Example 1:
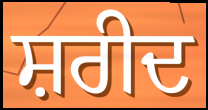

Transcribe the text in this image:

ਸ਼ਰੀਦ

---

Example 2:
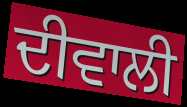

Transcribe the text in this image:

ਦੀਵਾਲੀ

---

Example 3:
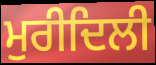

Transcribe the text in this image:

ਮੁਰੀਦਿਲੀ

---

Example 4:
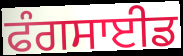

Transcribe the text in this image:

ਫੰਗਸਾਈਡ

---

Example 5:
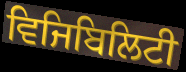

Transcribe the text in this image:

ਵਿਜਿਬਿਲਿਟੀ